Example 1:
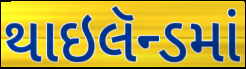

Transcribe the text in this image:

થાઇલૅન્ડમાં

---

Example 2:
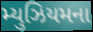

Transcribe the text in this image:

મ્યુઝિયમના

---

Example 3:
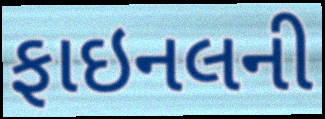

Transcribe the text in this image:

ફાઇનલની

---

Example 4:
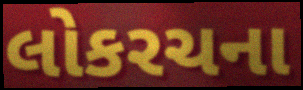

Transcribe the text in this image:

લોકરચના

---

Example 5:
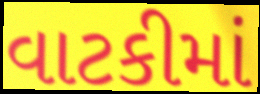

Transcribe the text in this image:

વાટકીમાં